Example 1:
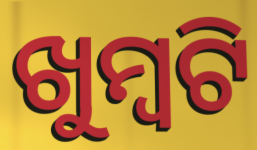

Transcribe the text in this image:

ଖୁମ୍ବଟି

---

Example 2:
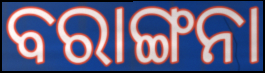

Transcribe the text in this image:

ବରାଙ୍ଗନା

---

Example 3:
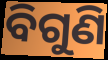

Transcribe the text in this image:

ବିଗୁଣି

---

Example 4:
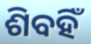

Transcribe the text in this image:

ଶିବହିଁ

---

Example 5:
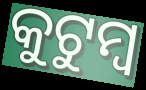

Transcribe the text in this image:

କୁଟୁମ୍ଵ